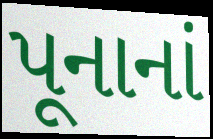
પૂનાનાં